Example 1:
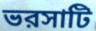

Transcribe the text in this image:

ভরসাটি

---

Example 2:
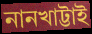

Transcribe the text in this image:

নানখাট্টাই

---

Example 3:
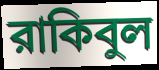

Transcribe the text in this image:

রাকিবুল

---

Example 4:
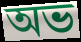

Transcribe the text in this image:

অভ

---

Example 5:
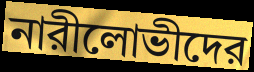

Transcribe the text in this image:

নারীলোভীদের